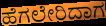
ಹೆಗಲೇರಿದಾಗ